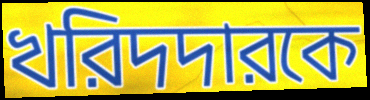
খরিদদারকে